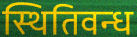
स्थितिवन्ध